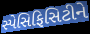
સ્પેસિફિસિટીને